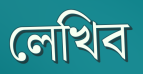
লেখিব